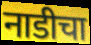
नाडीचा